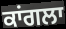
ਕਾਂਗਲਾ